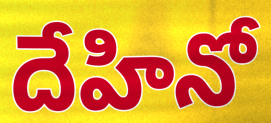
దేహినో